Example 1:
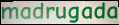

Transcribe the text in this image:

madrugada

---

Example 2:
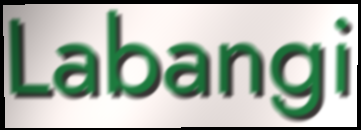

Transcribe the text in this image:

Labangi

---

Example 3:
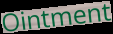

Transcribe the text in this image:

Ointment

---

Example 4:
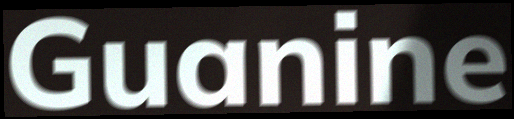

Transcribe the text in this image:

Guanine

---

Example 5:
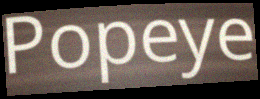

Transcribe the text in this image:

Popeye